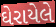
ઘેરાયેલે